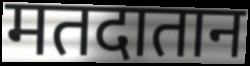
मतदातान